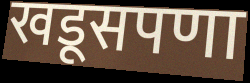
खडूसपणा